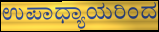
ಉಪಾಧ್ಯಾಯರಿಂದ